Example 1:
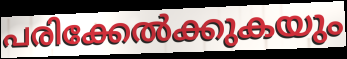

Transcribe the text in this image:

പരിക്കേൽക്കുകയും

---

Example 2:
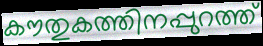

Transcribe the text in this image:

കൗതുകത്തിനപ്പുറത്ത്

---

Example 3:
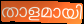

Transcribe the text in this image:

താളമായി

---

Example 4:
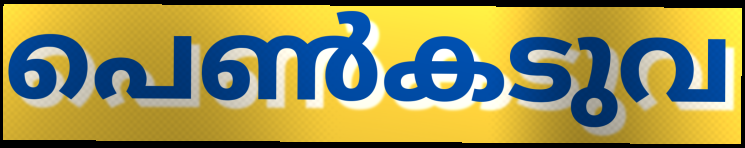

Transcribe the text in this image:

പെൺകടുവ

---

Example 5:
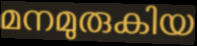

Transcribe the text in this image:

മനമുരുകിയ